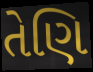
તેણિ